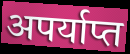
अपर्याप्त